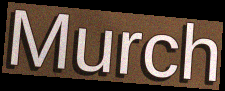
Murch